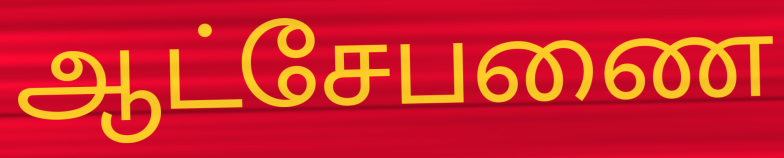
ஆட்சேபணை